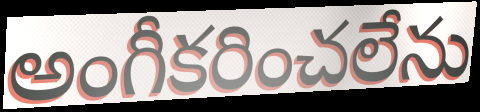
అంగీకరించలేను